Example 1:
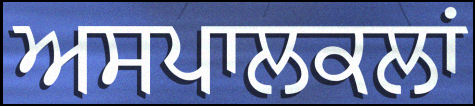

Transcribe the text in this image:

ਅਸਪਾਲਕਲਾਂ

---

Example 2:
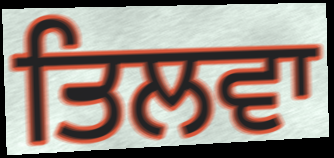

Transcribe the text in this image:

ਤਿਲਵਾ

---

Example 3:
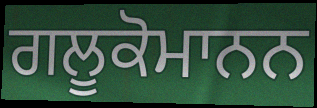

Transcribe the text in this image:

ਗਲੂਕੋਮਾਨਨ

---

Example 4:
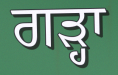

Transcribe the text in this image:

ਗੜ੍ਹਾ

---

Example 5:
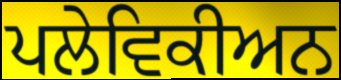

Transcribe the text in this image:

ਪਲੇਵਿਕੀਅਨ